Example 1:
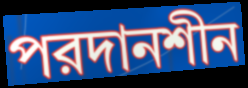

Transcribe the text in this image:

পরদানশীন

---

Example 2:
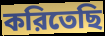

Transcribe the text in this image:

করিতেছি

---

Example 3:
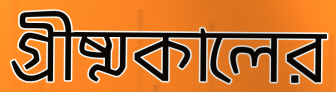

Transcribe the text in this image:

গ্রীষ্মকালের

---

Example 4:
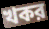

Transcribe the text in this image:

খকর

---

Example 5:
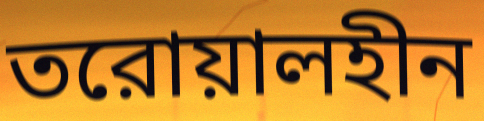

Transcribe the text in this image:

তরোয়ালহীন